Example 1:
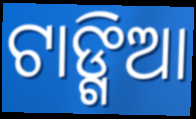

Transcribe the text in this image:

ଟାଙ୍ଗିଆ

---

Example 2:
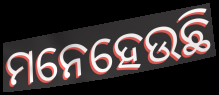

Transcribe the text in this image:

ମନେହେଉଛି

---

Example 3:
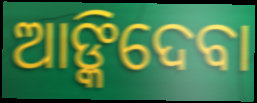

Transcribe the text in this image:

ଆଙ୍କିଦେବା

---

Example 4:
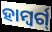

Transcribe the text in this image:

ହାମ୍ବର୍ଗ୍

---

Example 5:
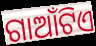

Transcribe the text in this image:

ଗାଆଁଟିଏ